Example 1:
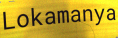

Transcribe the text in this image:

Lokamanya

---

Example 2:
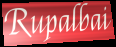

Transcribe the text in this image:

Rupalbai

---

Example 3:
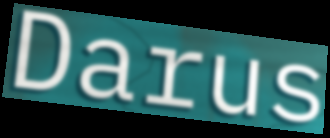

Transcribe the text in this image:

Darus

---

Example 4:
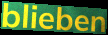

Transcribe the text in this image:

blieben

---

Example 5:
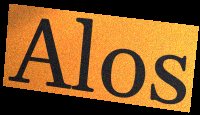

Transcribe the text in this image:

Alos